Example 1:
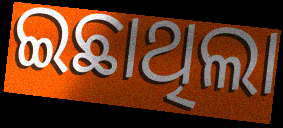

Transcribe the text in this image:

ଇଛାଥିଲା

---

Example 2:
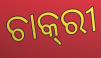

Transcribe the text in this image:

ଚାକ୍‌ରୀ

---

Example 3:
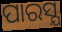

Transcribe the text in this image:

ପାରସ୍ଯ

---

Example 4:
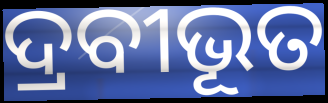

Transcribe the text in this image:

ଦ୍ରବୀଭୂତ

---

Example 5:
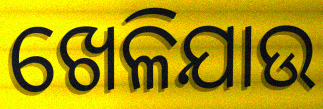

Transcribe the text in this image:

ଖେଳିଯାଉ